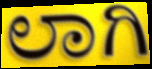
ಲಾಗಿ